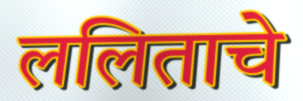
ललिताचे